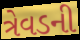
ત્રેવડની